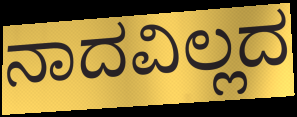
ನಾದವಿಲ್ಲದ